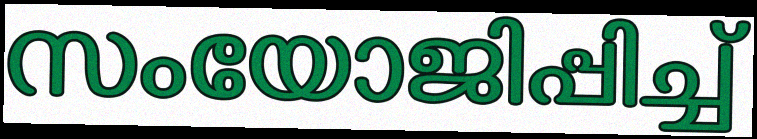
സംയോജിപ്പിച്ച്